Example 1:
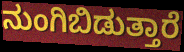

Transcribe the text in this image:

ನುಂಗಿಬಿಡುತ್ತಾರೆ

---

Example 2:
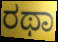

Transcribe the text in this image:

ರಥಾ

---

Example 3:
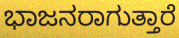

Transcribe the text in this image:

ಭಾಜನರಾಗುತ್ತಾರೆ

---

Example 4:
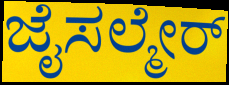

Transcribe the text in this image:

ಜೈಸಲ್ಮೇರ್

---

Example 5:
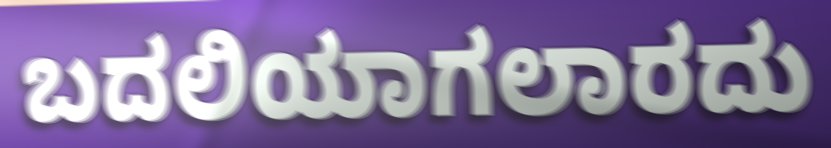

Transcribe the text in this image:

ಬದಲಿಯಾಗಲಾರದು